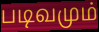
படிவமும்